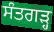
ਸੰਤਗੜ੍ਹ